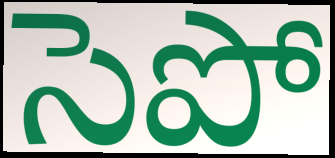
సెపో